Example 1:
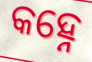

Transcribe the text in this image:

କହ୍ନେ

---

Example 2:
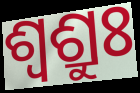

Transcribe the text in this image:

ଶ୍ଵଶ୍ରୁଃ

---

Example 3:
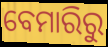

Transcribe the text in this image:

ବେମାରିରୁ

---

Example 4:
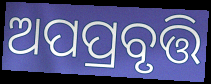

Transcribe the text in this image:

ଅପପ୍ରବୃତ୍ତି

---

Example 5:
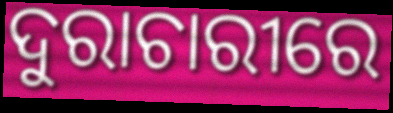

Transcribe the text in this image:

ଦୁରାଚାରୀରେ